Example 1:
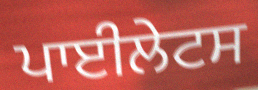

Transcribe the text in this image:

ਪਾਈਲੇਟਸ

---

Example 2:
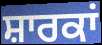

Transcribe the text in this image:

ਸ਼ਾਰਕਾਂ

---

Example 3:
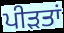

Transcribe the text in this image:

ਪੀੜਤਾਂ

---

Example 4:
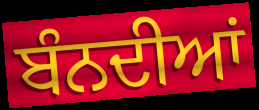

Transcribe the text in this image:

ਬੰਨਦੀਆਂ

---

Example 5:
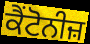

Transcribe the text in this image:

ਕੈਂਟੋਨੀਜ਼